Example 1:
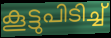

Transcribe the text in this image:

കൂട്ടുപിടിച്ച്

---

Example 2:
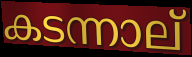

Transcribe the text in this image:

കടന്നാല്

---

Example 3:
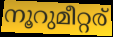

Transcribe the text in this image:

നൂറുമീറ്റര്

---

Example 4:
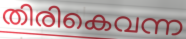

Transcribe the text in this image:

തിരികെവന്ന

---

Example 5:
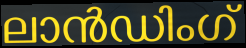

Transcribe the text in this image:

ലാൻഡിംഗ്